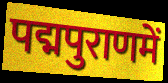
पद्मपुराणमें